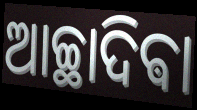
ଆଚ୍ଛାଦିଵା